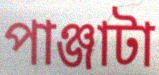
পাঞ্জাটা